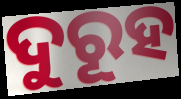
ଦୁରୂହ